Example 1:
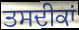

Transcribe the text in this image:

ਤਸਦੀਕਾਂ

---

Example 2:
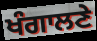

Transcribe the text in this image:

ਖੰਗਾਲਣੇ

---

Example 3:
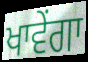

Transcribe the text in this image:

ਖਾਵੇਂਗਾ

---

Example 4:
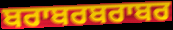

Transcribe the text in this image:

ਬਰਾਬਰਬਰਾਬਰ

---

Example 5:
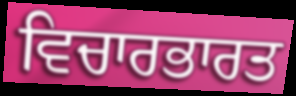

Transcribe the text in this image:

ਵਿਚਾਰਭਾਰਤ